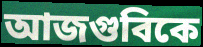
আজগুবিকে